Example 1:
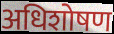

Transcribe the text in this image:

अधिशोषण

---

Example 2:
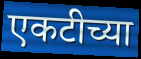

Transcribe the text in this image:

एकटीच्या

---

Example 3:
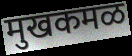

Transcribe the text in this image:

मुखकमळ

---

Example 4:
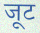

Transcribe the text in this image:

जूट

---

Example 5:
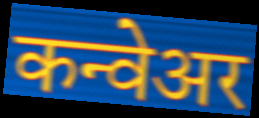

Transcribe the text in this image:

कन्वेअर